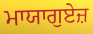
ਮਾਯਾਗੁਏਜ਼